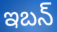
ఇబన్